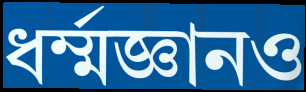
ধর্ম্মজ্ঞানও